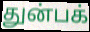
துன்பக்